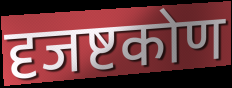
दृजष्टकोण